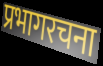
प्रभागरचना